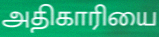
அதிகாரியை